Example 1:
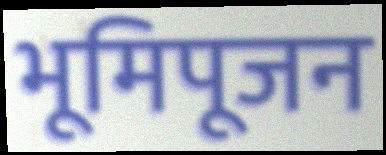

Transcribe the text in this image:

भूमिपूजन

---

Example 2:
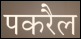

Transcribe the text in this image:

पकरैल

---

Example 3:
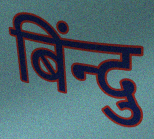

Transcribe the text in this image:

बिंन्दु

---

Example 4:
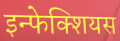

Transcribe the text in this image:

इन्फेक्शियस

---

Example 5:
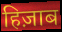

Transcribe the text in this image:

हिज़ाब